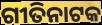
ଗୀତିନାଟକ